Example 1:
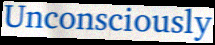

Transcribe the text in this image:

Unconsciously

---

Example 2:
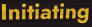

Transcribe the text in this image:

Initiating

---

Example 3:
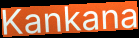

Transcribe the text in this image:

Kankana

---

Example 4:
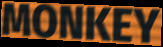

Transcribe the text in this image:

MONKEY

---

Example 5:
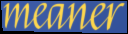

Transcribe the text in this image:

meaner